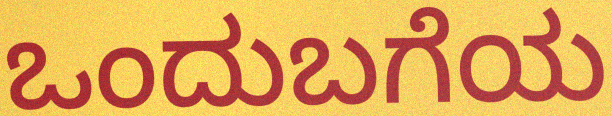
ಒಂದುಬಗೆಯ